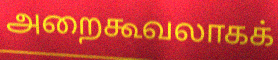
அறைகூவலாகக்